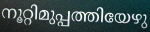
നൂറ്റിമുപ്പത്തിയേഴു